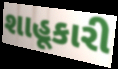
શાહૂકારી